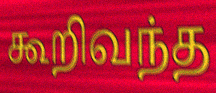
கூறிவந்த